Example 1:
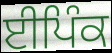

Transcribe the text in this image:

ਈਪਿੰਕ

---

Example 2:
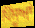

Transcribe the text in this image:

ਪਿੱਸੂਆਂ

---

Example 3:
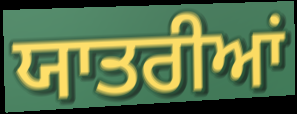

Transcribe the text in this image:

ਯਾਤਰੀਆਂ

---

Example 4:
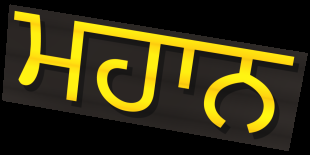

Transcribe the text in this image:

ਮਹਾਨ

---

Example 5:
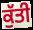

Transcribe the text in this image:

ਕੁੱਤੀ